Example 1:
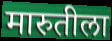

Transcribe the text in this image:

मारुतीला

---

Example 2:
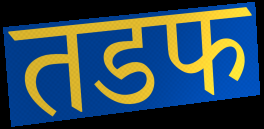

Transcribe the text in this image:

तडफ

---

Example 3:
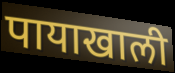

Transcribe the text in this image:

पायाखाली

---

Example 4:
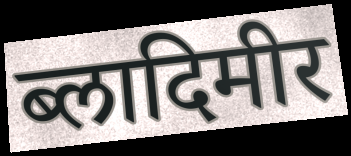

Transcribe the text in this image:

ब्लादिमीर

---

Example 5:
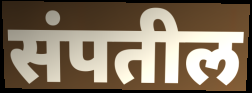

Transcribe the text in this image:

संपतील